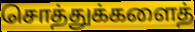
சொத்துக்களைத்